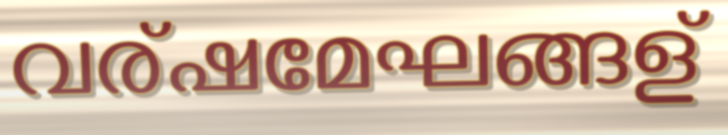
വര്ഷമേഘങ്ങള്